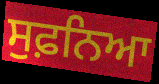
ਸੁਫ਼ਨਿਆ